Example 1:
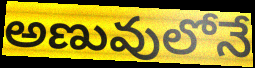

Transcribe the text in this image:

అణువులోనే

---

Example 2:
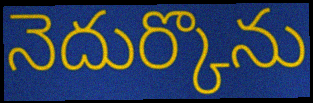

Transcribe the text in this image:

నెదుర్కొను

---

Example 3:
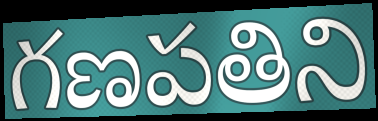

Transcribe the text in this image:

గణపతిని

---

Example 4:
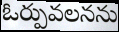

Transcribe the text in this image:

ఓర్పువలనను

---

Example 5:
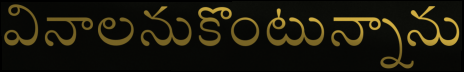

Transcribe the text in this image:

వినాలనుకొంటున్నాను